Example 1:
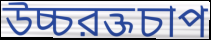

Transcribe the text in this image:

উচ্চরক্তচাপ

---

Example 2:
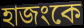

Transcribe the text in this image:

হাজংকে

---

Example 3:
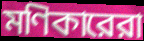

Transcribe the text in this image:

মণিকারেরা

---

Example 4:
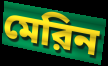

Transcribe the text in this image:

মেরিন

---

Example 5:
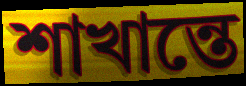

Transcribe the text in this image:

শাখান্তে